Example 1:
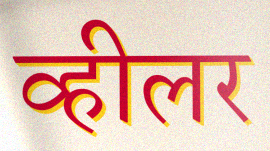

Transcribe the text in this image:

व्हीलर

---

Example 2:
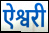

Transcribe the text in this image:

ऐश्वरी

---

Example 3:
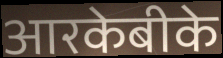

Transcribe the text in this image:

आरकेबीके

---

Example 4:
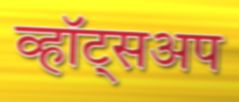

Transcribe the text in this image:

व्हॉट्सअप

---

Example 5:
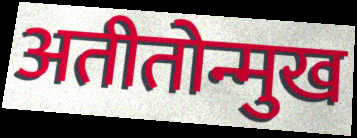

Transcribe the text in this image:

अतीतोन्मुख